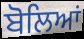
ਬੋਲਿਆਂ